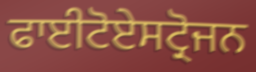
ਫਾਈਟੋਏਸਟ੍ਰੋਜਨ